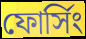
ফোর্সিং